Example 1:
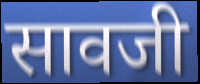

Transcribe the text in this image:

सावजी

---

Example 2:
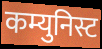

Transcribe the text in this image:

कम्युनिस्ट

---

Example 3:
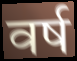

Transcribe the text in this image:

वर्ष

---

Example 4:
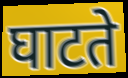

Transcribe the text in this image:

घाटते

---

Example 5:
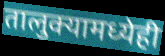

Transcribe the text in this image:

तालुक्यामध्येही